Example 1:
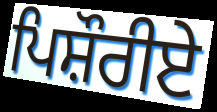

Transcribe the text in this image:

ਪਿਸ਼ੌਰੀਏ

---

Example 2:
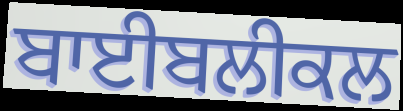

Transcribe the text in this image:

ਬਾਈਬਲੀਕਲ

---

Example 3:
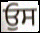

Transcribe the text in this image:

ਓੁਸ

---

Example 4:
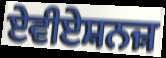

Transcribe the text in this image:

ਏਵੀਏਸ਼ਨਜ਼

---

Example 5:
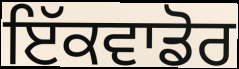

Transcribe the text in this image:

ਇੱਕਵਾਡੋਰ